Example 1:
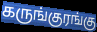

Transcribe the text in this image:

கருங்குரங்கு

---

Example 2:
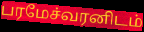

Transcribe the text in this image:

பரமேச்வரனிடம்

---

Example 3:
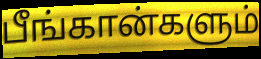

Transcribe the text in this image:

பீங்கான்களும்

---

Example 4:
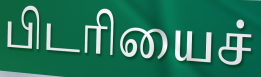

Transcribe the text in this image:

பிடரியைச்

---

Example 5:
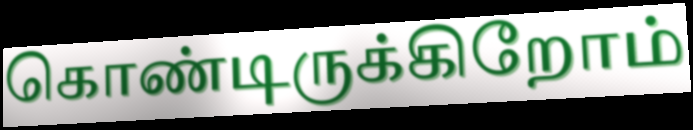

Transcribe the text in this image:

கொண்டிருக்கிறோம்